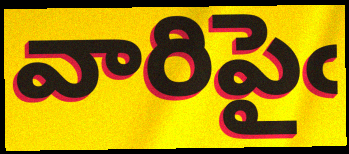
వారిపైఁ